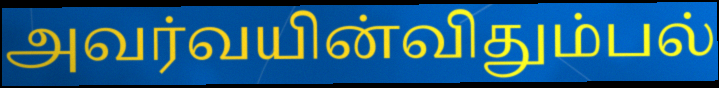
அவர்வயின்விதும்பல்